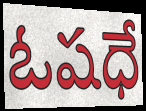
ఓషధే